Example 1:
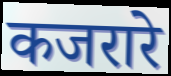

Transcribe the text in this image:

कजरारे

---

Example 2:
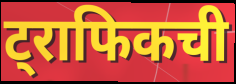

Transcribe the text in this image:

ट्राफिकची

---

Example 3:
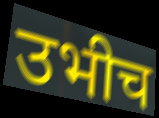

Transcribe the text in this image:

उभीच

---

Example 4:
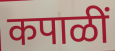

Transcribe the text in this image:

कपाळीं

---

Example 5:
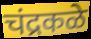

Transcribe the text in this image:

चंद्रकळे